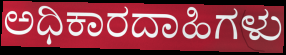
ಅಧಿಕಾರದಾಹಿಗಳು